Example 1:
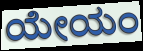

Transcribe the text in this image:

ಯೇಯಂ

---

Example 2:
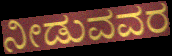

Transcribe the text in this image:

ನೀಡುವವರ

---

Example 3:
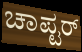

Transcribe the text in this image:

ಚಾಪ್ಟರ್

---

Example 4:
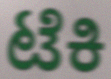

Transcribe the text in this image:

ಟೆಕಿ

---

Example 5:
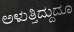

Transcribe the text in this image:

ಅಳುತ್ತಿದ್ದುದೂ